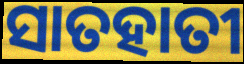
ସାତହାତୀ